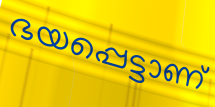
ഭയപ്പെട്ടാണ്